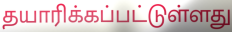
தயாரிக்கப்பட்டுள்ளது